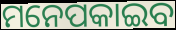
ମନେପକାଇବ